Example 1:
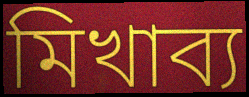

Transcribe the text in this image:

মিখাব্য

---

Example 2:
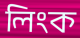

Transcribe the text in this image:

লিংক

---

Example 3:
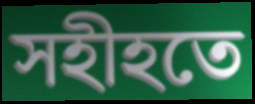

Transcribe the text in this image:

সহীহতে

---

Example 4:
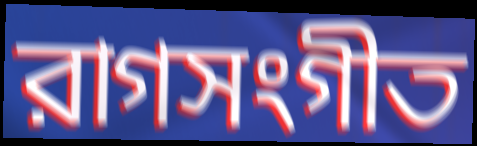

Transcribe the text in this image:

রাগসংগীত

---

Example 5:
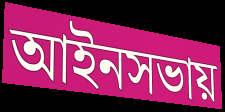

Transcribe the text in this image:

আইনসভায়